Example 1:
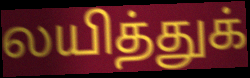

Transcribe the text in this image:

லயித்துக்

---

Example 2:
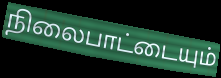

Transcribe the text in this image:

நிலைபாட்டையும்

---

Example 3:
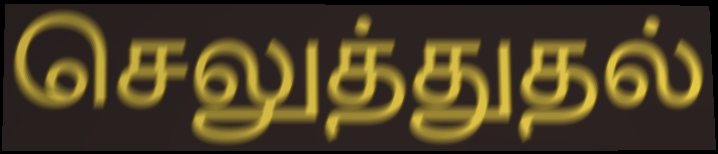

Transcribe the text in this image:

செலுத்துதல்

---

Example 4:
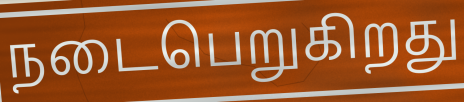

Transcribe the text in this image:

நடைபெறுகிறது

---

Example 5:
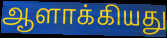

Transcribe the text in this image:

ஆளாக்கியது